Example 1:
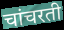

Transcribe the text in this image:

चांचरती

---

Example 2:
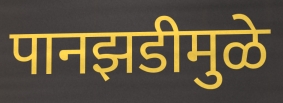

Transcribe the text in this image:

पानझडीमुळे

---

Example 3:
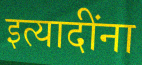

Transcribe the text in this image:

इत्यादींना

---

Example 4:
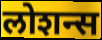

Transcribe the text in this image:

लोशन्स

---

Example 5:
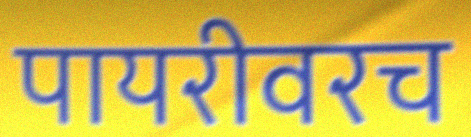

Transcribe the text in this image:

पायरीवरच